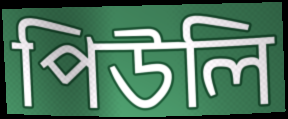
পিউলি